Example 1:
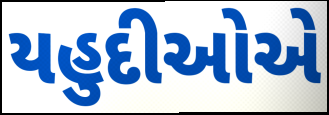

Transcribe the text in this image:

યહુદીઓએ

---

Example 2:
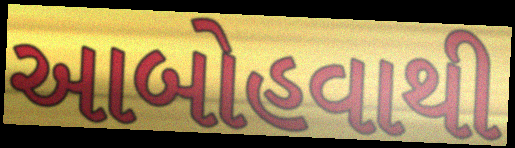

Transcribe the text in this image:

આબોહવાથી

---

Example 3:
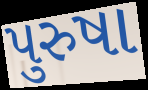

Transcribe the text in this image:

પુરુષા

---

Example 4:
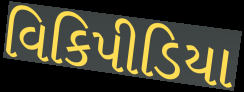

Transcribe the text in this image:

વિકિપીડિયા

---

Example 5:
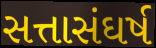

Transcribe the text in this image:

સત્તાસંઘર્ષ